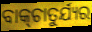
ବାକ୍‍ଚାତୁର୍ଯ୍ୟର